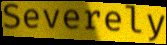
Severely